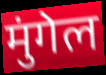
मुंगेल